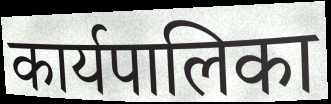
कार्यपालिका